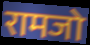
रामजो